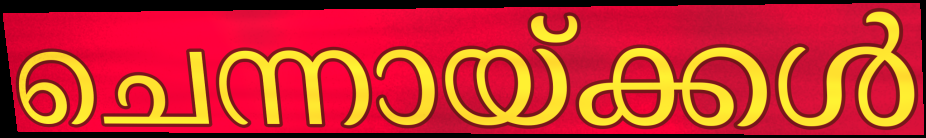
ചെന്നായ്ക്കൾ